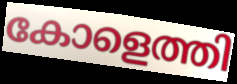
കോളെത്തി